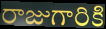
రాజుగారికి